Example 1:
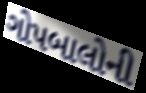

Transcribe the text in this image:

ગોપબાલોની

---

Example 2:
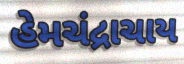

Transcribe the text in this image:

હેમચંદ્રાચાય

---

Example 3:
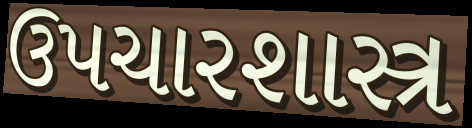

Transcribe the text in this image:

ઉપચારશાસ્ત્ર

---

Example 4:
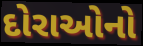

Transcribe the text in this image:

દોરાઓનો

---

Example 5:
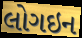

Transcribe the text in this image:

લોગઇન